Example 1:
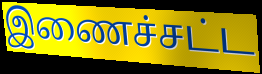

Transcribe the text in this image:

இணைச்சட்ட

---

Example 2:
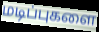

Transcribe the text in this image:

மடிப்புகளை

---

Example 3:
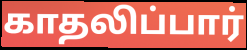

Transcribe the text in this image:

காதலிப்பார்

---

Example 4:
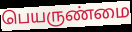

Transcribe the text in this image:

பெயருண்மை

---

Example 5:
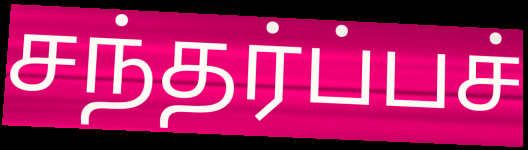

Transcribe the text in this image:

சந்தர்ப்பச்